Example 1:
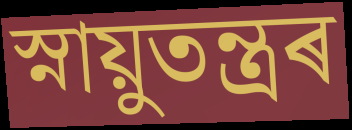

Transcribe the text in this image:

স্নায়ুতন্ত্ৰৰ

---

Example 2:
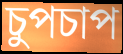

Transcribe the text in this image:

চুপচাপ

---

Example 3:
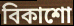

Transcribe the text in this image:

বিকাশো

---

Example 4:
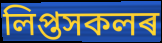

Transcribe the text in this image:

লিপ্তসকলৰ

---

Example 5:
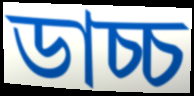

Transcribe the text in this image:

ডাচ্চ